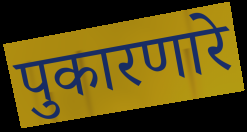
पुकारणारे